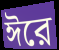
ঈরে